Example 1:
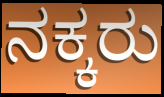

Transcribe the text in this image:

ನಕ್ಕರು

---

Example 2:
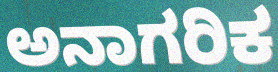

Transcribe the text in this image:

ಅನಾಗರಿಕ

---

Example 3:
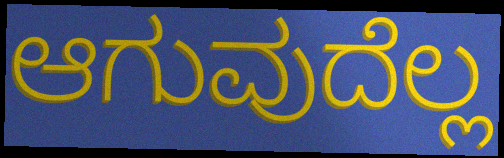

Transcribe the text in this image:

ಆಗುವುದೆಲ್ಲ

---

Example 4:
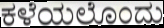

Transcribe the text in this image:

ಕಳೆಯಲೊಂದು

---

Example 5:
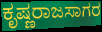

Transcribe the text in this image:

ಕೃಷ್ಣರಾಜಸಾಗರ